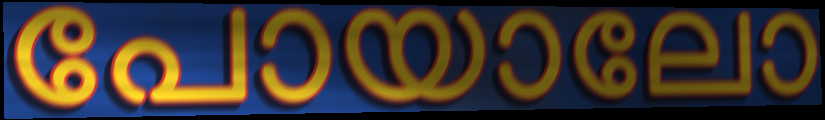
പോയാലോ